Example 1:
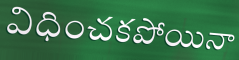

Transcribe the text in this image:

విధించకపోయినా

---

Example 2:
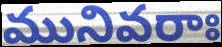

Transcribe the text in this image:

మునివరాః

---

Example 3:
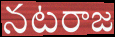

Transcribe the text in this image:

నటరాజ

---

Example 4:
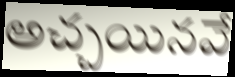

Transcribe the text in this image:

అచ్చయినవే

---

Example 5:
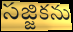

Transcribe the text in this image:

సజ్జికను